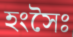
হংসৈঃ